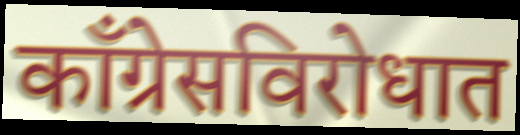
काँग्रेसविरोधात